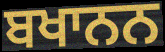
ਬਖਾਨਨ